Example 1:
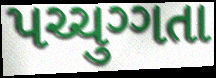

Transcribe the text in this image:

પચ્ચુગ્ગતા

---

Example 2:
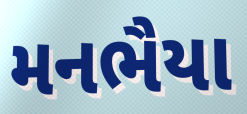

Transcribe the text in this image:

મનભૈયા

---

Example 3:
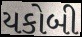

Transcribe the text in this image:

યકોબી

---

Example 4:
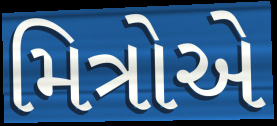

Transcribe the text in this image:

મિત્રોએ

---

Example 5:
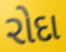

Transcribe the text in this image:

રોદા